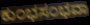
ಕುಂಭಸಂಭವಾ